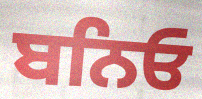
ਬਨਿਓ